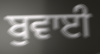
ਬੁਵਾਈ